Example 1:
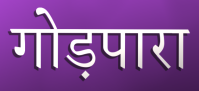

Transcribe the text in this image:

गोड़पारा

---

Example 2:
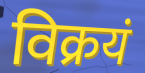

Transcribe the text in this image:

विक्रयं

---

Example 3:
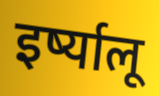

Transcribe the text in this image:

इर्ष्यालू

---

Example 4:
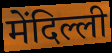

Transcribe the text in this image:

मेंदिल्ली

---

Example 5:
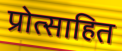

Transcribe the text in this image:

प्रोत्‍साहित